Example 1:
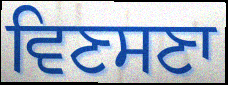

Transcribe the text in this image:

ਵਿਣਸਣਾ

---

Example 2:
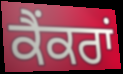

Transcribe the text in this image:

ਕੈਂਕਰਾਂ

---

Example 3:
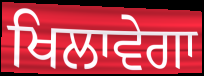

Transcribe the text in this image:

ਖਿਲਾਵੇਗਾ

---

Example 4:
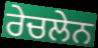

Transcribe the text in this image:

ਰੇਚਲੇਨ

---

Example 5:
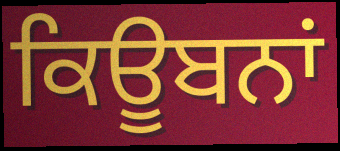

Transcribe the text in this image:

ਕਿਊਬਨਾਂ